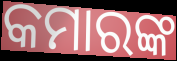
କମାରଙ୍କ